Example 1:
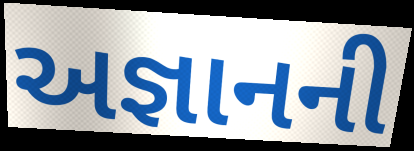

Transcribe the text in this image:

અજ્ઞાનની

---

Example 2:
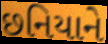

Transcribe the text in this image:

છનિયાને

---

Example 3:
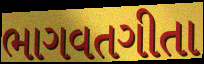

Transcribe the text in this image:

ભાગવતગીતા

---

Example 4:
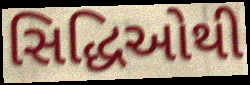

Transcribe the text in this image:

સિદ્ધિઓથી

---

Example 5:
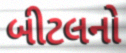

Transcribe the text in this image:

બીટલનો